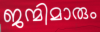
ജന്മിമാരും